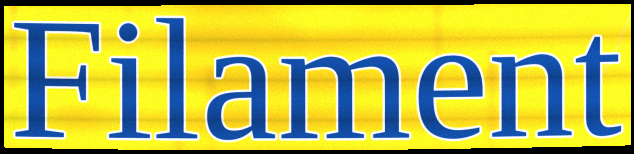
Filament